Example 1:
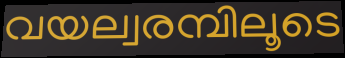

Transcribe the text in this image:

വയല്വരമ്പിലൂടെ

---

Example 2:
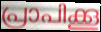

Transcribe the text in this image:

പ്രാപിക്കൂ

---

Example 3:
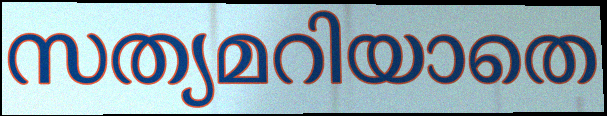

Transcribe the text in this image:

സത്യമറിയാതെ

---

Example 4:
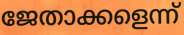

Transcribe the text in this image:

ജേതാക്കളെന്ന്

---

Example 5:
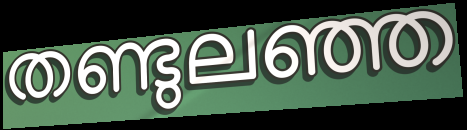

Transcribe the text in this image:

തണ്ടുലഞ്ഞ